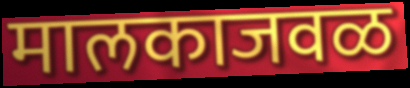
मालकाजवळ